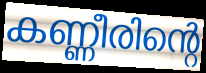
കണ്ണീരിന്റെ